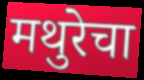
मथुरेचा